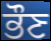
ਭੌਣ